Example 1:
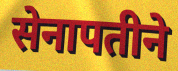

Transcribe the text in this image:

सेनापतीने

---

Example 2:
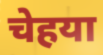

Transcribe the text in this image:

चेहया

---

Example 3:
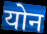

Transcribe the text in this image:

योन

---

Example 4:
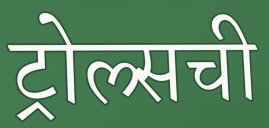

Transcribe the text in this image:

ट्रोल्सची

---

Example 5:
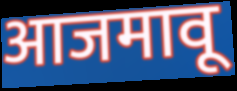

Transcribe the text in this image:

आजमावू